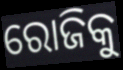
ରୋଜିକୁ